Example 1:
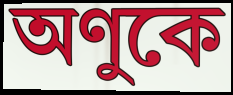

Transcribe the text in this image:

অণুকে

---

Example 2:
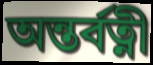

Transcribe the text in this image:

অন্তর্বত্নী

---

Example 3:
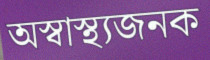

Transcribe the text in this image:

অস্বাস্থ্যজনক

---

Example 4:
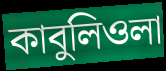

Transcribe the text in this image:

কাবুলিওলা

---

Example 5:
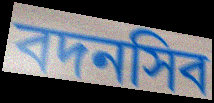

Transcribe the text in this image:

বদনসিব